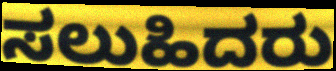
ಸಲುಹಿದರು